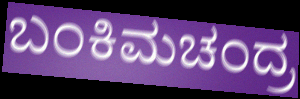
ಬಂಕಿಮಚಂದ್ರ